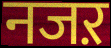
नजऱ